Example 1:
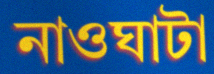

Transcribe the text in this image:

নাওঘাটা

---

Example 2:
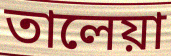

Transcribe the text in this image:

তালেয়া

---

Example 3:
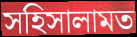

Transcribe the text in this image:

সহিসালামত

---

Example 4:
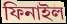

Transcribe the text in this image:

ফিনাইল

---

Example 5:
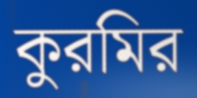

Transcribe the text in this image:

কুরমির